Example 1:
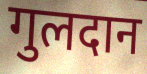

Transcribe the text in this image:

गुलदान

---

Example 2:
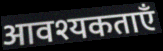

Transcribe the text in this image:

आवश्यकताएँ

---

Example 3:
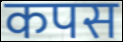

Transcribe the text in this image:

कपस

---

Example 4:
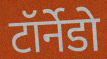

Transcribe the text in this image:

टॉर्नेडो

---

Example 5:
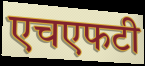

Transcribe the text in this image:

एचएफटी